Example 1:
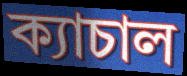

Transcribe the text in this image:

ক্যাচাল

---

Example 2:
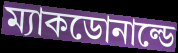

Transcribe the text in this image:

ম্যাকডোনাল্ডে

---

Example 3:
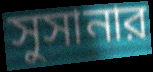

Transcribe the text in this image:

সুসানার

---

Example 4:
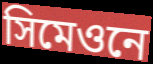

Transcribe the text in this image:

সিমেওনে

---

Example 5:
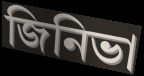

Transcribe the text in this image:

জিনিভা